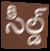
సీల్డ్